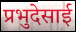
प्रभुदेसाई